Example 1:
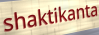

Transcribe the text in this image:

shaktikanta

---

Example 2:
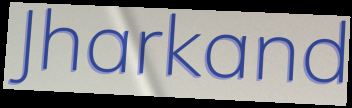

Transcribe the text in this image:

Jharkand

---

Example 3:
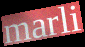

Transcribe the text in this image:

marli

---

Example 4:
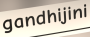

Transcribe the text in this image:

gandhijini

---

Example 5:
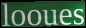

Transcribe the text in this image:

looues